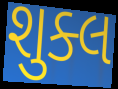
શુક્લ